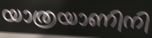
യാത്രയാണിനി